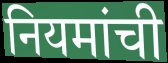
नियमांची